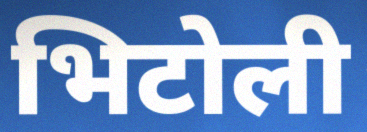
भिटोली